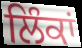
ਲਿੰਕਾਂ